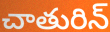
చాతురిన్